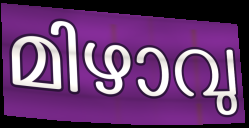
മിഴാവു